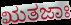
ಋತಜಾಃ